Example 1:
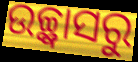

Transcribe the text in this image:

ଉଚ୍ଛ୍ୱାସରୁ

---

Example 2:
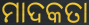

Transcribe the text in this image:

ମାଦକତା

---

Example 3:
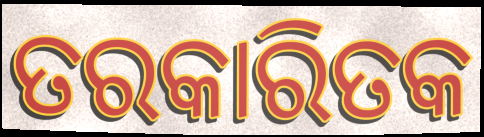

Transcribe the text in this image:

ତରକାରିତକ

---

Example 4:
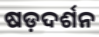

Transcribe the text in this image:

ଷଡ଼ଦର୍ଶନ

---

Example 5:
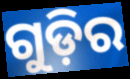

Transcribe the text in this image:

ଗୁଡ଼ିର